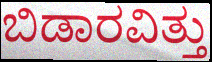
ಬಿಡಾರವಿತ್ತು